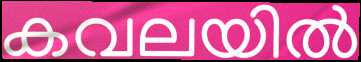
കവലയിൽ